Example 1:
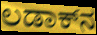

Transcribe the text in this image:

ಲಡಾಕ್‌ನ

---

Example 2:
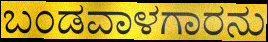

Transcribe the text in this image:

ಬಂಡವಾಳಗಾರನು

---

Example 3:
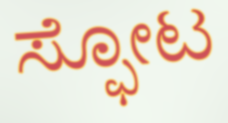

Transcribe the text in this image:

ಸ್ಫೋಟ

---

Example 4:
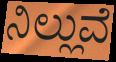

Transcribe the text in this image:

ನಿಲ್ಲುವೆ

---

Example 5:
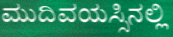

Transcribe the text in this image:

ಮುದಿವಯಸ್ಸಿನಲ್ಲಿ